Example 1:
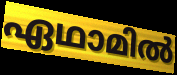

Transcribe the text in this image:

ഏഥാമിൽ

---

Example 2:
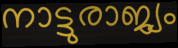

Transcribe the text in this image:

നാട്ടുരാജ്യം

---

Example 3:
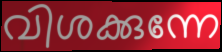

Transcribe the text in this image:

വിശക്കുന്നേ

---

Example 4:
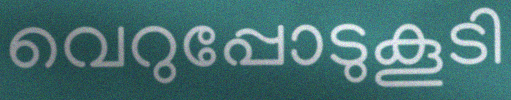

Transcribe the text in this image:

വെറുപ്പോടുകൂടി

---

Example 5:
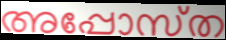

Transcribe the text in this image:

അപ്പോസ്‌ത